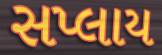
સપ્લાય